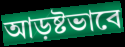
আড়ষ্টভাবে